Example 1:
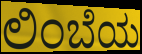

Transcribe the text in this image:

ಲಿಂಬೆಯ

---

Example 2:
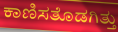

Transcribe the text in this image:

ಕಾಣಿಸತೊಡಗಿತ್ತು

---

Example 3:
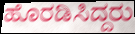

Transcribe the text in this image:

ಹೊರಡಿಸಿದ್ದರು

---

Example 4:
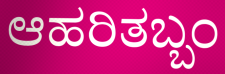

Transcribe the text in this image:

ಆಹರಿತಬ್ಬಂ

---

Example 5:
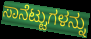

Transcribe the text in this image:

ಸಾನೆಟ್ಟುಗಳನ್ನು